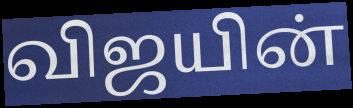
விஜயின்